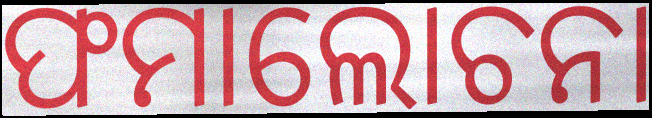
ଫମାଲୋଚନା